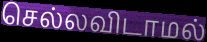
செல்லவிடாமல்